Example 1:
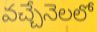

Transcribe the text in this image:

వచ్చేనెలలో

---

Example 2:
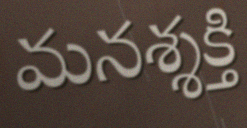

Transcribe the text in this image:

మనశ్శక్తి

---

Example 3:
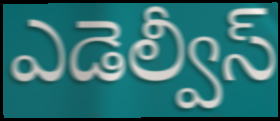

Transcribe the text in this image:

ఎడెల్వీస్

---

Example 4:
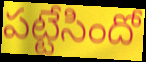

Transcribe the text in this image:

పట్టేసిందో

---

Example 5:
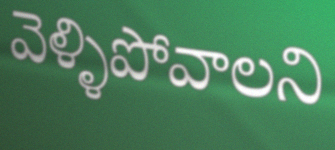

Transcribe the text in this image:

వెళ్ళిపోవాలని